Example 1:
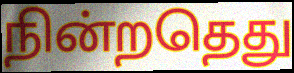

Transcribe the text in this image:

நின்றதெது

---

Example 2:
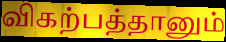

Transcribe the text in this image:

விகற்பத்தானும்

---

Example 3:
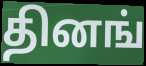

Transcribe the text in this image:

தினங்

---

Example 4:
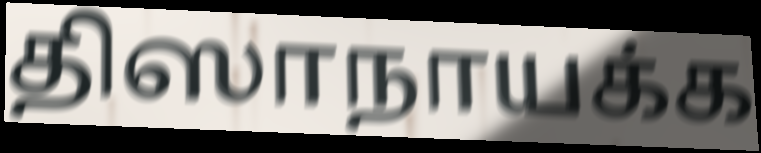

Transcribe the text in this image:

திஸாநாயக்க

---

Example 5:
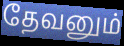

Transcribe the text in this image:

தேவனும்